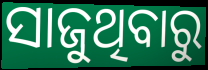
ସାଜୁଥିବାରୁ